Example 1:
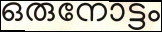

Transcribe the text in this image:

ഒരുനോട്ടം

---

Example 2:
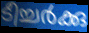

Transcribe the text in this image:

ടീച്ചർക്കു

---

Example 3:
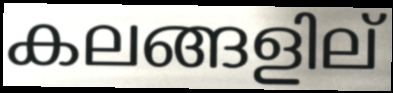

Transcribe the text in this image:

കലങ്ങളില്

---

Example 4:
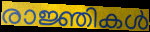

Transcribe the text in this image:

രാജ്ഞികൾ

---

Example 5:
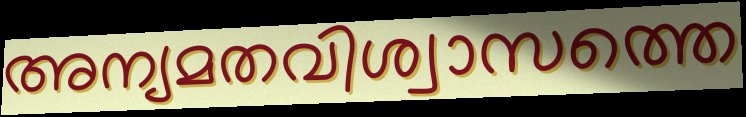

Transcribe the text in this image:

അന്യമതവിശ്വാസത്തെ